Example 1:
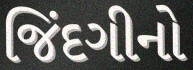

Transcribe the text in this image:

જિંદગીનો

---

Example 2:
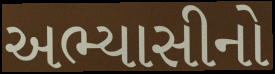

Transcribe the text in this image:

અભ્યાસીનો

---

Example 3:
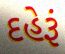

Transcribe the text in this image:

દહેરૂં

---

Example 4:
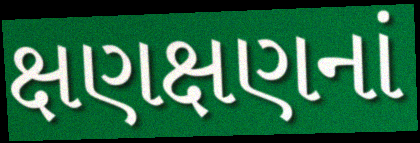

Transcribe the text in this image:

ક્ષણક્ષણનાં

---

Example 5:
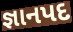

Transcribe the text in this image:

જ્ઞાનપદ